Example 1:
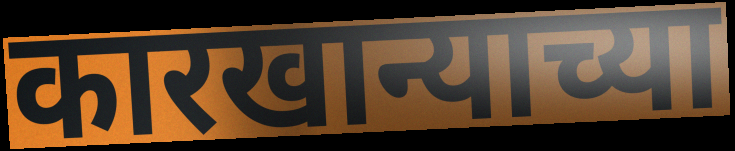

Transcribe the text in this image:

कारखान्याच्या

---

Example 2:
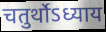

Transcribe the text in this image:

चतुर्थोऽध्याय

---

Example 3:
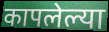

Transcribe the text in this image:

कापलेल्या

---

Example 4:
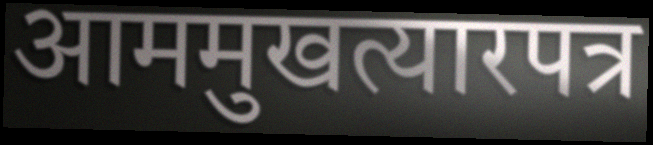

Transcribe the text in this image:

आममुखत्यारपत्र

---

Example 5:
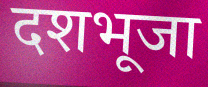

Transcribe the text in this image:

दशभूजा